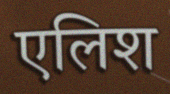
एलिश